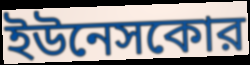
ইউনেসকোর